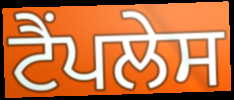
ਟੈਂਪਲੇਸ